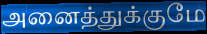
அனைத்துக்குமே